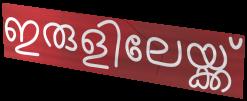
ഇരുളിലേയ്ക്ക്